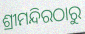
ଶ୍ରୀମନ୍ଦିରଠାରୁ